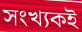
সংখ্যকই